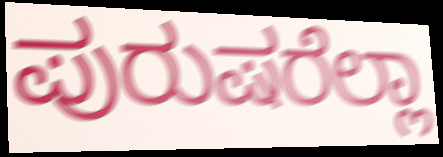
ಪುರುಷರೆಲ್ಲಾ